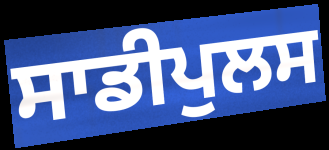
ਸਾਡੀਪੁਲਸ